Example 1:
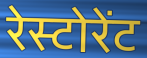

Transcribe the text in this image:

रेस्टोरेंट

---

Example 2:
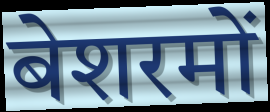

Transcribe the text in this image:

बेशरमों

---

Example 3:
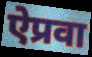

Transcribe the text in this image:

ऐप्रवा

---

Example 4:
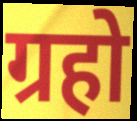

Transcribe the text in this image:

ग्रहो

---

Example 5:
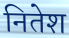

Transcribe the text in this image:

नितेश